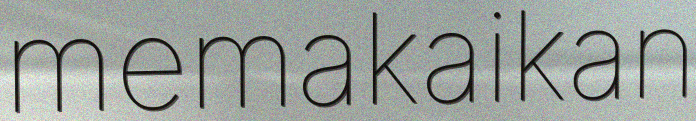
memakaikan